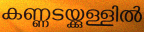
കണ്ണടയ്ക്കുള്ളിൽ